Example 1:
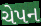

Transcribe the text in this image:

ચેપન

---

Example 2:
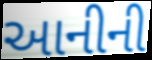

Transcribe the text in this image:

આનીની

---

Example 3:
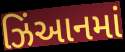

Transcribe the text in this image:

ઝિંઆનમાં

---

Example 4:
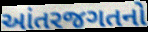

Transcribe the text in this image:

આંતરજગતનો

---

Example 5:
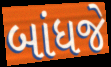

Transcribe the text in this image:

બાંધજે